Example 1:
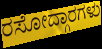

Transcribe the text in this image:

ರಸೋದ್ಗಾರಗಳು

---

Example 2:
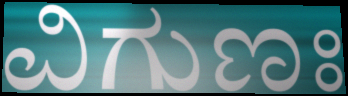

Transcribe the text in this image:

ವಿಗುಣಃ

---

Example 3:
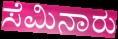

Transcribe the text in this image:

ಸೆಮಿನಾರು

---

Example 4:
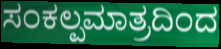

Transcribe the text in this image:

ಸಂಕಲ್ಪಮಾತ್ರದಿಂದ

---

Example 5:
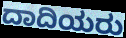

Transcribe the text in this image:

ದಾದಿಯರು